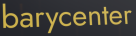
barycenter